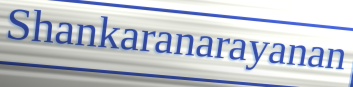
Shankaranarayanan